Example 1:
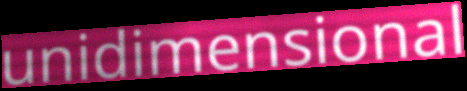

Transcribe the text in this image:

unidimensional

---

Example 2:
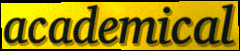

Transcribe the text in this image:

academical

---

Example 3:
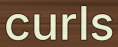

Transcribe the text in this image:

curls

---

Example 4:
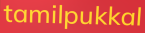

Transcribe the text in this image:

tamilpukkal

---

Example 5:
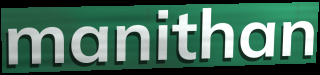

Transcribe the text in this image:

manithan